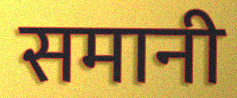
समानी